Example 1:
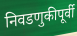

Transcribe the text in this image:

निवडणुकीपूर्वी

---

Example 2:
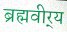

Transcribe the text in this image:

ब्रह्मवीर्य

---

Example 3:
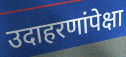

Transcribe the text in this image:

उदाहरणांपेक्षा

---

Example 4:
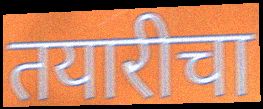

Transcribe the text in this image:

तयारीचा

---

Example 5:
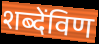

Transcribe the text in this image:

शब्देंविण